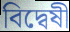
বিদ্বেষী